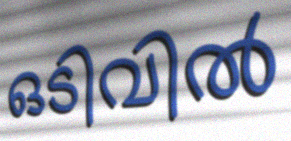
ഒടിവിൽ